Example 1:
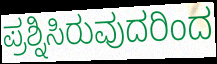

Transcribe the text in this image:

ಪ್ರಶ್ನಿಸಿರುವುದರಿಂದ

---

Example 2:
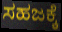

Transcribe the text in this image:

ಸಹಜಕ್ಕೆ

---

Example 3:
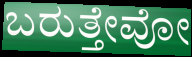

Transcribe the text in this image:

ಬರುತ್ತೇವೋ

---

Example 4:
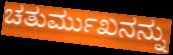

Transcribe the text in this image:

ಚತುರ್ಮುಖನನ್ನು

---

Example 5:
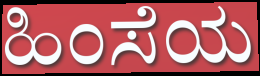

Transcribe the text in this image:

ಹಿಂಸೆಯ